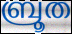
ബ്രൂത